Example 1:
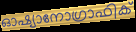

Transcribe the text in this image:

ഓഷ്യാനോഗ്രാഫിക്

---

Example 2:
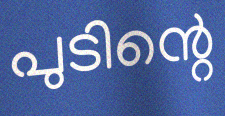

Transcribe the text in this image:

പുടിന്റെ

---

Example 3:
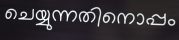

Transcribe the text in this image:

ചെയ്യുന്നതിനൊപ്പം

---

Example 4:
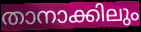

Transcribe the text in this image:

താനാക്കിലും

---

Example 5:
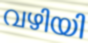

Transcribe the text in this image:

വഴിയി